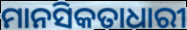
ମାନସିକତାଧାରୀ